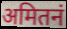
अमितनं